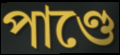
পাণ্ডে